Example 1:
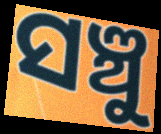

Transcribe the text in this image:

ସଞ୍ଚୁ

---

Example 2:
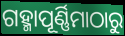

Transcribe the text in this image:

ଗହ୍ମାପୂର୍ଣ୍ଣିମାଠାରୁ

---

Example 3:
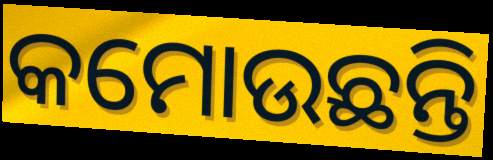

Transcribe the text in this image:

କମୋଉଛନ୍ତି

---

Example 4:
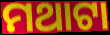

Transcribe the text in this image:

ମଥାଟା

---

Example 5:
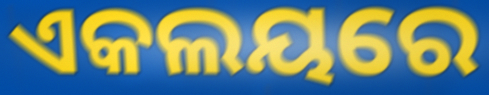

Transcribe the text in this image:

ଏକଲୟରେ